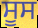
ਸੂਸ